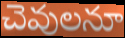
చెవులనూ